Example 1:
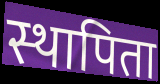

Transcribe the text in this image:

स्थापिता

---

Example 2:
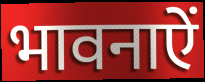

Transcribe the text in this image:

भावनाऐं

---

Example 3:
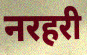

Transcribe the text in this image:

नरहरी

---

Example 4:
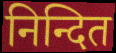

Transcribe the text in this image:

निन्दित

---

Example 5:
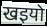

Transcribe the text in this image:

खइयो